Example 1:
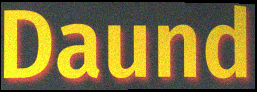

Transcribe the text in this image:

Daund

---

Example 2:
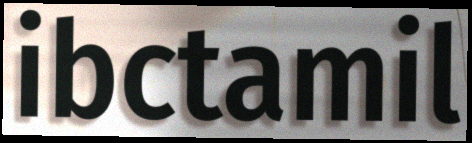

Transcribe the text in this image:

ibctamil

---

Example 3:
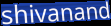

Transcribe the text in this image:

shivanand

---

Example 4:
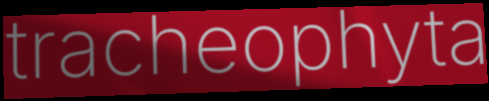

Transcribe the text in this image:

tracheophyta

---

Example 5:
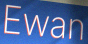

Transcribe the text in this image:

Ewan